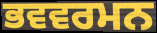
ਭਵਵਰਮਨ